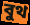
বুথ